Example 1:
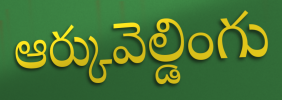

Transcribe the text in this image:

ఆర్కువెల్డింగు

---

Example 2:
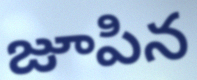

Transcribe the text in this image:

జూపిన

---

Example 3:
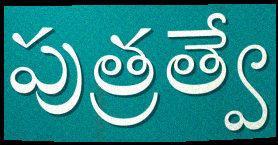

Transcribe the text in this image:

పుత్రత్వే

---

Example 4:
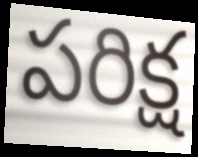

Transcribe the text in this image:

పరిక్ష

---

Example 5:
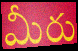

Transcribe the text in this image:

మీరు